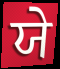
ਯੇ